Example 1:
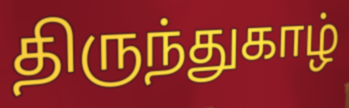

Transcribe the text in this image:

திருந்துகாழ்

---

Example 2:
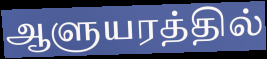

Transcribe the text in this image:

ஆளுயரத்தில்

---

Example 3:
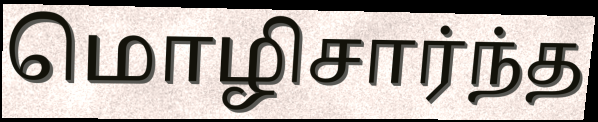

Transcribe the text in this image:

மொழிசார்ந்த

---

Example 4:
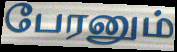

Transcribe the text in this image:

பேரனும்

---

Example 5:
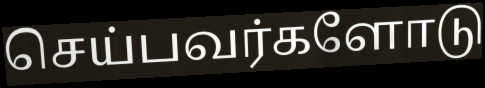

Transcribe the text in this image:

செய்பவர்களோடு